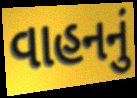
વાહનનું